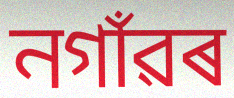
নগাঁৱৰ